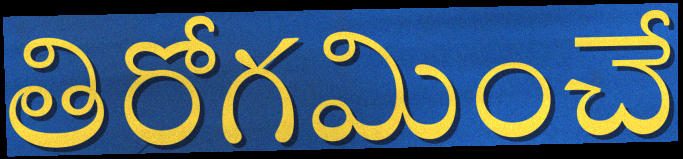
తిరోగమించే